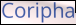
Coripha